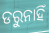
ଡରୁନାହିଁ